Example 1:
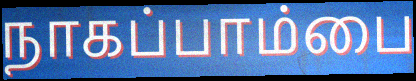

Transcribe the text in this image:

நாகப்பாம்பை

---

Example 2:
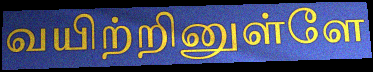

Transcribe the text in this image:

வயிற்றினுள்ளே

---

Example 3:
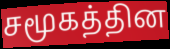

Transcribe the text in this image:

சமூகத்தின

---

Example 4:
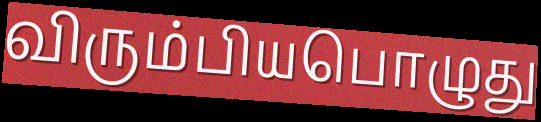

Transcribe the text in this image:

விரும்பியபொழுது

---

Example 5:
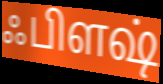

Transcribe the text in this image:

ஃபிளஷ்